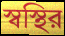
স্বস্থির